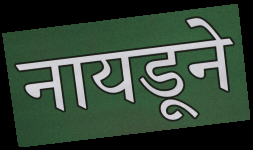
नायडूने